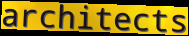
architects